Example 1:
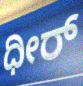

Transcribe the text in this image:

ಧೀರ್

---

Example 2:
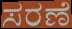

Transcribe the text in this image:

ಸರಣೆ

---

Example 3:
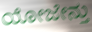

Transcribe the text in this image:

ಯೋಜೇನ್ತು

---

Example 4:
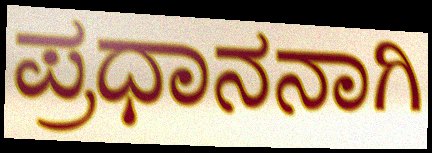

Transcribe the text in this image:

ಪ್ರಧಾನನಾಗಿ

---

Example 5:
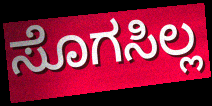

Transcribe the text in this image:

ಸೊಗಸಿಲ್ಲ